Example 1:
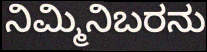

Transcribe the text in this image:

ನಿಮ್ಮಿನಿಬರನು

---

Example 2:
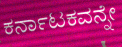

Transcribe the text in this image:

ಕರ್ನಾಟಕವನ್ನೇ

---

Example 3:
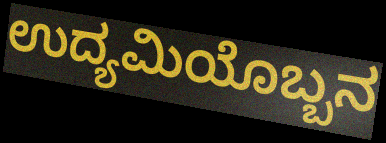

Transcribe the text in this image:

ಉದ್ಯಮಿಯೊಬ್ಬನ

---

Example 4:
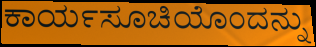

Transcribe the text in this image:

ಕಾರ್ಯಸೂಚಿಯೊಂದನ್ನು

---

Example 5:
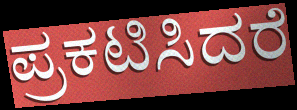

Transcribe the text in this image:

ಪ್ರಕಟಿಸಿದರೆ